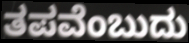
ತಪವೆಂಬುದು